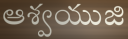
ఆశ్వయుజి